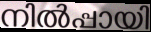
നിൽപ്പായി